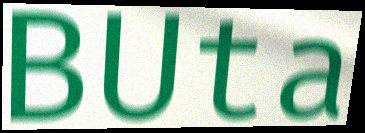
BUta